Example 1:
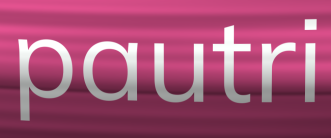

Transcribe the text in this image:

pautri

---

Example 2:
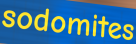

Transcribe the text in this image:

sodomites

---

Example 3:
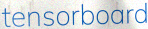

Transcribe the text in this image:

tensorboard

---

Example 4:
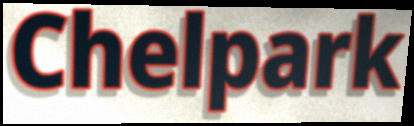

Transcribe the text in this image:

Chelpark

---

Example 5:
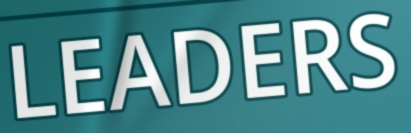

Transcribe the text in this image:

LEADERS